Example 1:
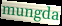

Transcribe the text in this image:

mungda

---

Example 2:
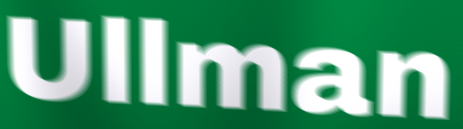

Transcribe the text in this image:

Ullman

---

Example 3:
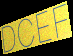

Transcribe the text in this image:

DCEF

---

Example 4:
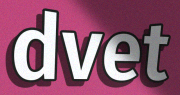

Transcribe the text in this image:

dvet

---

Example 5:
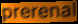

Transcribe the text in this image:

prerenal